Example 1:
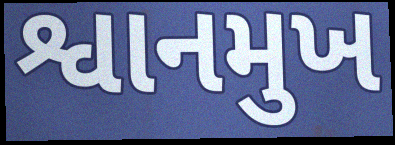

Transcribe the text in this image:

શ્વાનમુખ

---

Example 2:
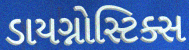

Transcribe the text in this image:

ડાયગ્નોસ્ટિક્સ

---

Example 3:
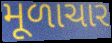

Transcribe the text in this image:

મૂળાચાર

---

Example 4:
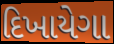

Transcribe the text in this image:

દિખાયેગા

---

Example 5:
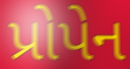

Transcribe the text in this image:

પ્રોપેન